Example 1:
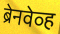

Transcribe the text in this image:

ब्रेनवेव्ह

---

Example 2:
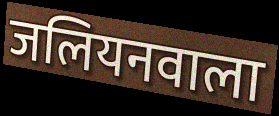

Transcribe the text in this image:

जलियनवाला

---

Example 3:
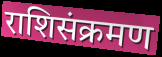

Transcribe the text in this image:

राशिसंक्रमण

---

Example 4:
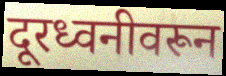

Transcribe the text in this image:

दूरध्वनीवरून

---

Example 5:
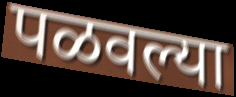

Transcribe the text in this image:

पळवल्या